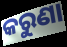
କରୁଣା